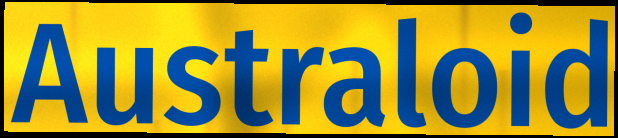
Australoid